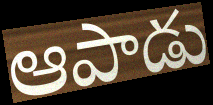
ఆపాడు